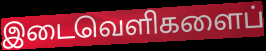
இடைவெளிகளைப்